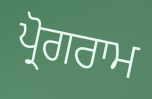
ਪ੍ਰੋਗਰਾਮ